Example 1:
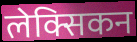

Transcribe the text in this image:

लेक्सिकन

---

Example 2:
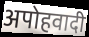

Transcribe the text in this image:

अपोहवादी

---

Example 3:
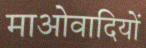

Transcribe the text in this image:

माओवादियों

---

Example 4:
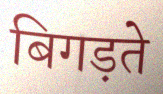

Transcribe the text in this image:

बिगड़ते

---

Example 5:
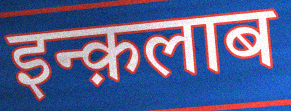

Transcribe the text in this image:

इन्क़लाब